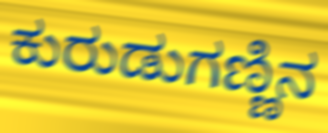
ಕುರುಡುಗಣ್ಣಿನ